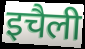
इचैली